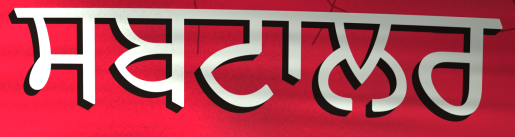
ਸਬਟਾਲਰ